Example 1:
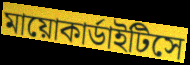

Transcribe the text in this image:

মায়োকার্ডাইটিসে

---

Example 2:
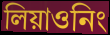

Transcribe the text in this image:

লিয়াওনিং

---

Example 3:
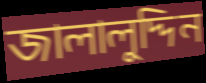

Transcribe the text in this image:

জালালুদ্দিন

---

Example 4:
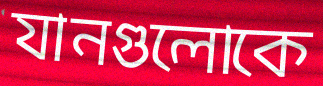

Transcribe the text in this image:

যানগুলোকে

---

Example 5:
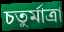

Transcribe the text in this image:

চতুর্মাত্রা